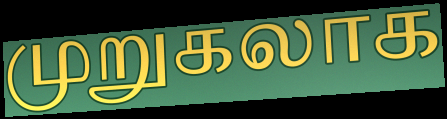
முறுகலாக